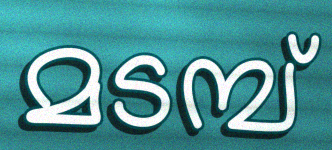
മടമ്പ്